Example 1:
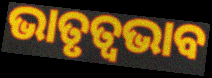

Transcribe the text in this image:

ଭାତୃତ୍ବଭାବ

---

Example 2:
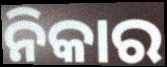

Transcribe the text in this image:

ନିକାର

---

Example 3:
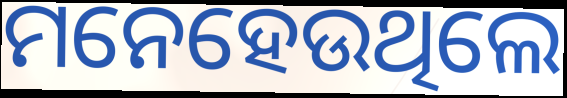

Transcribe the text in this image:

ମନେହେଉଥିଲେ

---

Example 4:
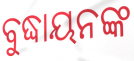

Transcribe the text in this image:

ବୁଦ୍ଧାୟନଙ୍କ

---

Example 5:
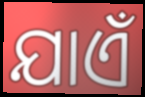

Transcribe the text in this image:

ଯାଏଁ